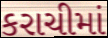
કરાચીમાં